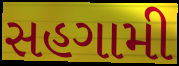
સહગામી